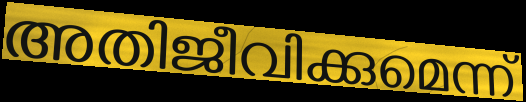
അതിജീവിക്കുമെന്ന്